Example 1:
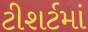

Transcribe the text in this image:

ટીશર્ટમાં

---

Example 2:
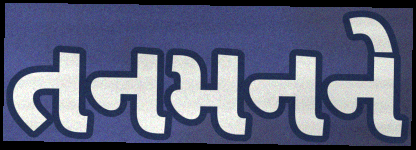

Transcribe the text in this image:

તનમનને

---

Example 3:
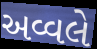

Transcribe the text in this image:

અવ્વલે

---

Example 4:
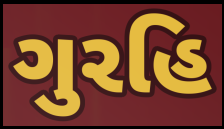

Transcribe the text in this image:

ગુરહિ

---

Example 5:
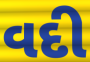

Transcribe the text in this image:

વદી